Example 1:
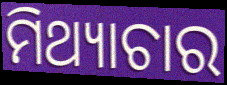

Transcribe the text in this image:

ମିଥ୍ୟାଚାର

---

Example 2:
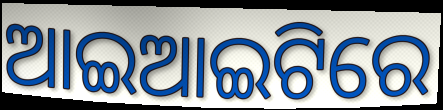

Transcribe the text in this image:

ଆଇଆଇଟିରେ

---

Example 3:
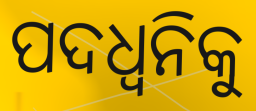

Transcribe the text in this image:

ପଦଧ୍ୱନିକୁ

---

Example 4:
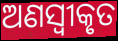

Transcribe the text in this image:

ଅଣସ୍ୱୀକୃତ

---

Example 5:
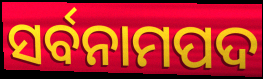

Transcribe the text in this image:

ସର୍ବନାମପଦ